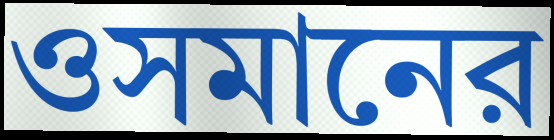
ওসমানের